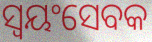
ସ୍ୱୟଂସେବକ